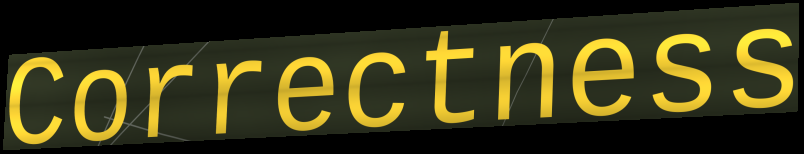
Correctness